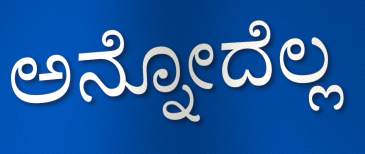
ಅನ್ನೋದೆಲ್ಲ